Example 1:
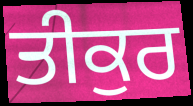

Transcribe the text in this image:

ਤੀਕੁਰ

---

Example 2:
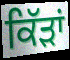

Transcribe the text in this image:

ਕਿੱੜਾਂ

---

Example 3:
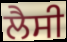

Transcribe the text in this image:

ਲੈਸੀ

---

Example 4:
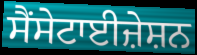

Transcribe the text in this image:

ਸੈਂਸੇਟਾਈਜ਼ੇਸ਼ਨ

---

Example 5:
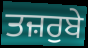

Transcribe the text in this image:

ਤਜ਼ਰੁਬੇ